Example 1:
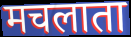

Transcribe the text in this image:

मचलाता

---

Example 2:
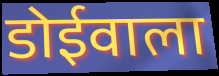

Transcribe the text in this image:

डोईवाला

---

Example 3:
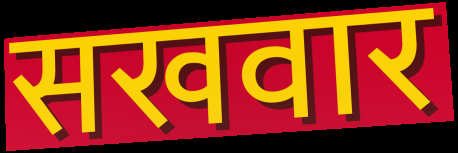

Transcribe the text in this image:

सखवार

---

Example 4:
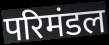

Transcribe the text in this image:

परिमंडल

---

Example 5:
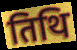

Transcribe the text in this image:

तिथि